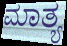
ಮಾತ್ಯ